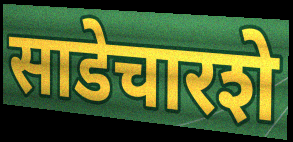
साडेचारशे